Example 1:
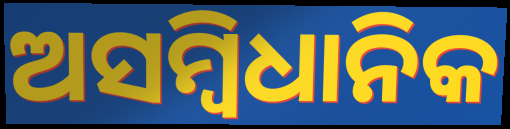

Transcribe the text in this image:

ଅସମ୍ବିଧାନିକ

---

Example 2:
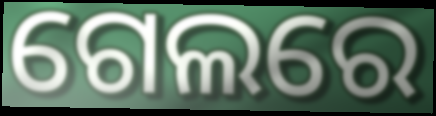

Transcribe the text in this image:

ଗେଲରେ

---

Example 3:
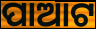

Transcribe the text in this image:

ପାଆଟ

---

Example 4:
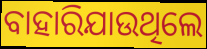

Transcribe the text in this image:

ବାହାରିଯାଉଥିଲେ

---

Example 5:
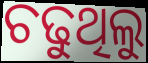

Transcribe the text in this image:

ଚଢୁଥିଲୁ